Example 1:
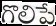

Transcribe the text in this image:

గొలిపే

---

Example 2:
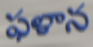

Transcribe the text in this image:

ఫళాన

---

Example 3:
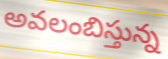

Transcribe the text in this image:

అవలంబిస్తున్న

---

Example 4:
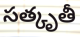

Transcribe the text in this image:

సత్కృతీ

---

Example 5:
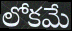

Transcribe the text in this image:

లోకమే